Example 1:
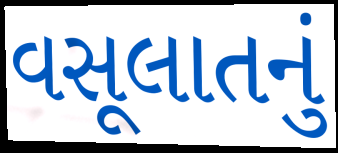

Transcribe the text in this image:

વસૂલાતનું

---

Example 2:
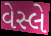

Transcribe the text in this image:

વેસ્લે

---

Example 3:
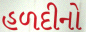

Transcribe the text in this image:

હળદીનો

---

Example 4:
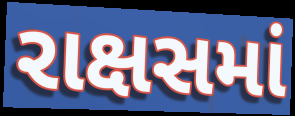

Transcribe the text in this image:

રાક્ષસમાં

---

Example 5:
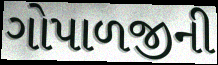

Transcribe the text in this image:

ગોપાળજીની